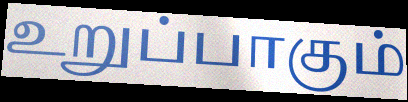
உறுப்பாகும்